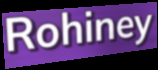
Rohiney